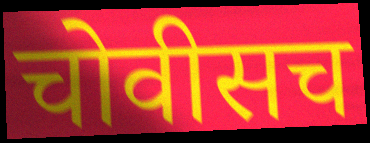
चोवीसच